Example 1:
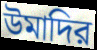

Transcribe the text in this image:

উমাদির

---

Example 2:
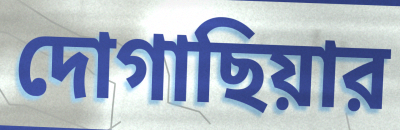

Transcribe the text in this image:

দোগাছিয়ার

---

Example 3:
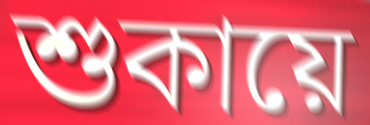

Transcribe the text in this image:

শুকায়ে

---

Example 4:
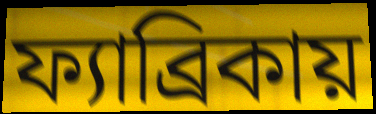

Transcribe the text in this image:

ফ্যাব্রিকায়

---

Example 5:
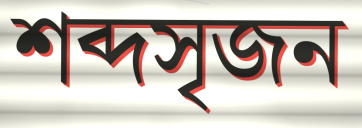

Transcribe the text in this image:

শব্দসৃজন